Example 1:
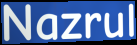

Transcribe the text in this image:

Nazrul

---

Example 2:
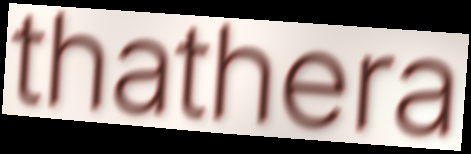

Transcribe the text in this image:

thathera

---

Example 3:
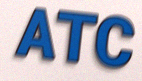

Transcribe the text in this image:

ATC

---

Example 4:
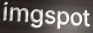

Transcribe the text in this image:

imgspot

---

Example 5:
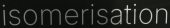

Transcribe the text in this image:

isomerisation